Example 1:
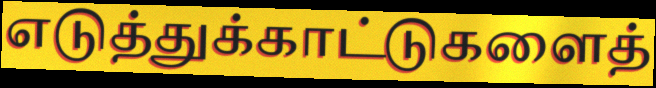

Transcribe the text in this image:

எடுத்துக்காட்டுகளைத்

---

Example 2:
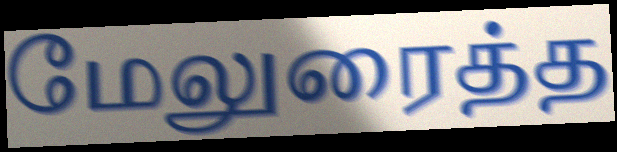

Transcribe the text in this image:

மேலுரைத்த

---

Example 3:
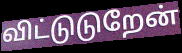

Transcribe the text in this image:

விட்டுடுறேன்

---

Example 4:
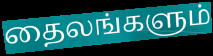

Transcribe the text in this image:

தைலங்களும்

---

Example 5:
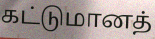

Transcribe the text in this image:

கட்டுமானத்